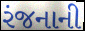
રંજનાની